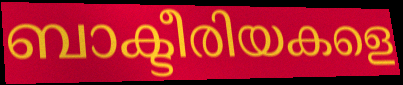
ബാക്ടീരിയകളെ